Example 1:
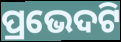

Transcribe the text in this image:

ପ୍ରଭେଦଟି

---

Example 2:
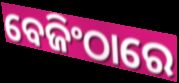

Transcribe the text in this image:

ବେଜିଂଠାରେ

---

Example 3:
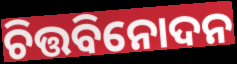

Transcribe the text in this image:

ଚିତ୍ତବିନୋଦନ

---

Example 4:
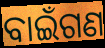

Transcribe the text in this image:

ବାଇଁଗଣ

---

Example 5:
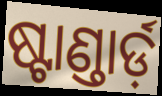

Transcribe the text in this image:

ଷ୍ଟାଣ୍ଡାର୍ଡ଼